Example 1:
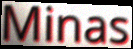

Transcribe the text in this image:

Minas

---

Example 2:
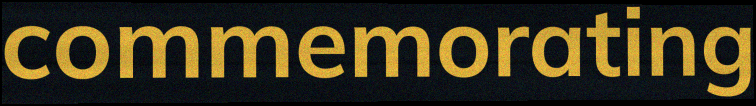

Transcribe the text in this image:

commemorating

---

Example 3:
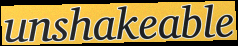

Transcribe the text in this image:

unshakeable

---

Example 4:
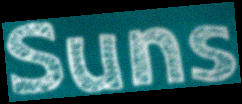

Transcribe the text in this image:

Suns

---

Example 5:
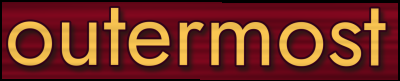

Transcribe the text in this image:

outermost